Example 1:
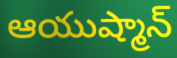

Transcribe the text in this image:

ఆయుష్మాన్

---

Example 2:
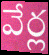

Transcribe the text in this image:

వేర్ల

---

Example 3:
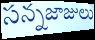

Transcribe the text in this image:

సన్నజాజులు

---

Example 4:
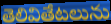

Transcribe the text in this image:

తెలివితేటలును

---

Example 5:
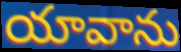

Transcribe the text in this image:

యావాను